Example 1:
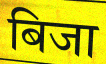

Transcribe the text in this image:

बिजा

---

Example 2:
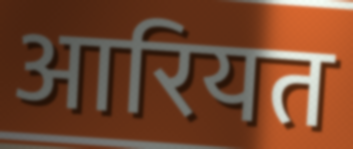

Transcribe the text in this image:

आरियत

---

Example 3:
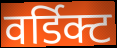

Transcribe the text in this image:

वर्डिक्ट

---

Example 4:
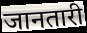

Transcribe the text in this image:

जानतारी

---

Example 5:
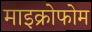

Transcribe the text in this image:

माइक्रोफोम